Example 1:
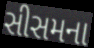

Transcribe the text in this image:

સીસમના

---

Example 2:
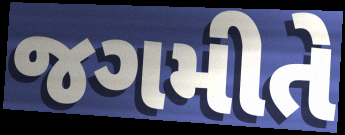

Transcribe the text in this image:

જગમીતે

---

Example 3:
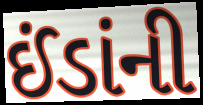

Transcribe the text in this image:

ઈંડાંની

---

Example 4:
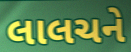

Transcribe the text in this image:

લાલચને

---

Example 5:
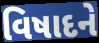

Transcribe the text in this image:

વિષાદને